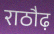
राठौढ़